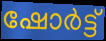
ഷോർട്ട്